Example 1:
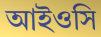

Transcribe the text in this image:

আইওসি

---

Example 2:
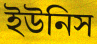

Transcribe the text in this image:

ইউনিস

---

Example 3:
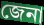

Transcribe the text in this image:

জেনা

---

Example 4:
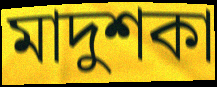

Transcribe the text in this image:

মাদুশকা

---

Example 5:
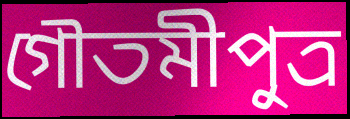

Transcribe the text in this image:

গৌতমীপুত্র